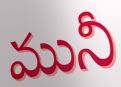
మునీ